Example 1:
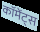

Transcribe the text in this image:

कॉमेंट्स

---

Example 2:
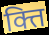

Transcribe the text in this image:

क्ति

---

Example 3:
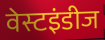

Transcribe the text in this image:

वेस्टइंडीज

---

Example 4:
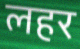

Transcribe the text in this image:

लहर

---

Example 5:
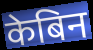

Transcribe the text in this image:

केबिन